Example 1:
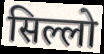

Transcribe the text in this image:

सिल्लो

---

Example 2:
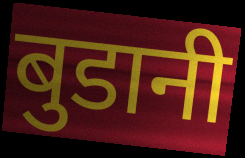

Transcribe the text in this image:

बुडानी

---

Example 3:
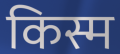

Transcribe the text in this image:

किस्म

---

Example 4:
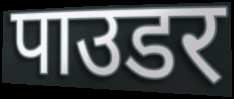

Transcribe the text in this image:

पाउडर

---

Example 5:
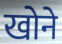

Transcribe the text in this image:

खोने